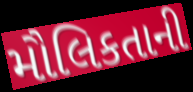
મૌલિકતાની